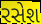
રસેશ